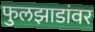
फुलझाडांवर